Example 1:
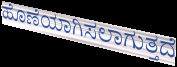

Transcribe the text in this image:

ಹೊಣೆಯಾಗಿಸಲಾಗುತ್ತದೆ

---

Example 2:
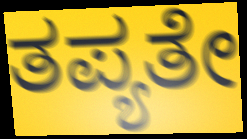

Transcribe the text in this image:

ತಪ್ಯತೇ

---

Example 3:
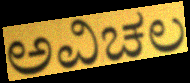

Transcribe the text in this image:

ಅವಿಚಲ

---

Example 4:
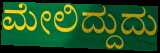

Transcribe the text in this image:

ಮೇಲಿದ್ದುದು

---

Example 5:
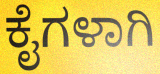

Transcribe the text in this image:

ಕೈಗಳಾಗಿ